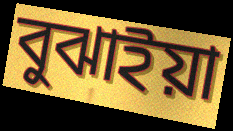
বুঝাইয়া